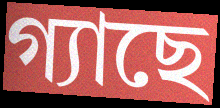
গ্যাছে